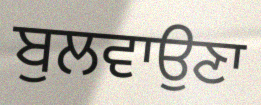
ਬੁਲਵਾਉਣਾ